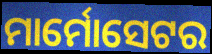
ମାର୍ମୋସେଟର